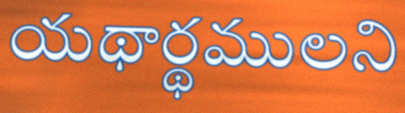
యథార్థములని